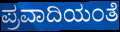
ಪ್ರವಾದಿಯಂತೆ